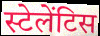
स्टेलेंटिस